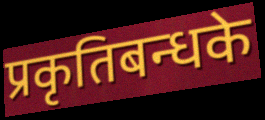
प्रकृतिबन्धके